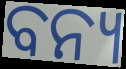
ବନ୍ୟ